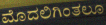
ಮೊದಲಿಗಿಂತಲೂ